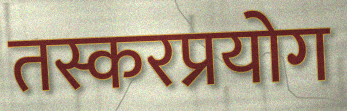
तस्करप्रयोग